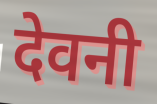
देवनी